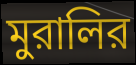
মুরালির